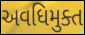
અવધિમુક્ત